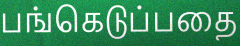
பங்கெடுப்பதை